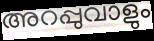
അറപ്പുവാളും